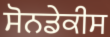
ਸੋਨਡੇਕੀਸ